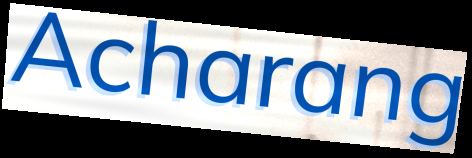
Acharang